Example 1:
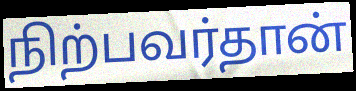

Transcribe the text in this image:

நிற்பவர்தான்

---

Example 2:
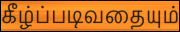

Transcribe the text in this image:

கீழ்ப்படிவதையும்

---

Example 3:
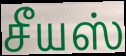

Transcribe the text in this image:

சீயஸ்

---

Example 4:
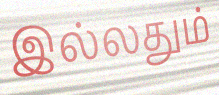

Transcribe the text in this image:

இல்லதும்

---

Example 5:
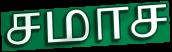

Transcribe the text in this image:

சமாச